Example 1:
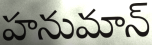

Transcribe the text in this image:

హనుమాన్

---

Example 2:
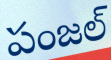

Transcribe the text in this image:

పంజల్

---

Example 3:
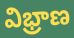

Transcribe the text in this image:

విభ్రాణ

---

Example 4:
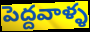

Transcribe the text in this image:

పెద్దవాళ్ళ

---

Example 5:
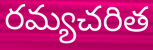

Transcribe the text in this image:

రమ్యచరిత